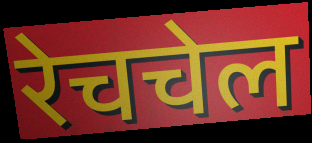
रेचचेल